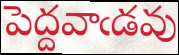
పెద్దవాఁడవు